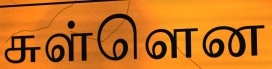
சுள்ளென